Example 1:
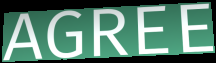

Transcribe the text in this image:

AGREE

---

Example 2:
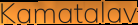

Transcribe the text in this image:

Kamatalav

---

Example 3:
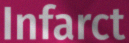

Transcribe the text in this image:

Infarct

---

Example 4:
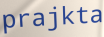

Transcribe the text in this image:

prajkta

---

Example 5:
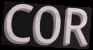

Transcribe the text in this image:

COR